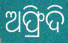
ଅଫ୍ରିଦି